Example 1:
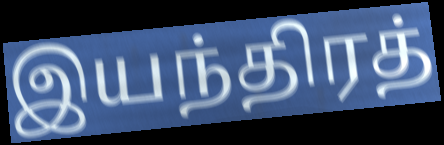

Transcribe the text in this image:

இயந்திரத்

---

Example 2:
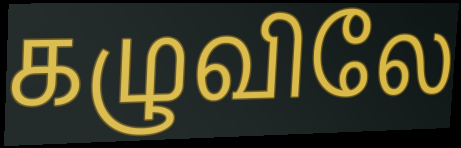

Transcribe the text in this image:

கழுவிலே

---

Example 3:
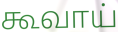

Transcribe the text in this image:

கூவாய்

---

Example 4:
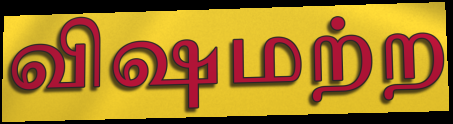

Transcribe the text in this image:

விஷமற்ற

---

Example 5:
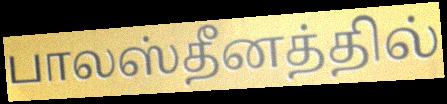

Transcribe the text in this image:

பாலஸ்தீனத்தில்